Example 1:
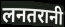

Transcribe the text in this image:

लनतरानी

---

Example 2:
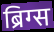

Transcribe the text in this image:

ब्रिग्स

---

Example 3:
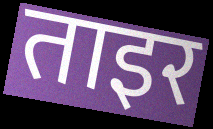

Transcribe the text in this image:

ताइर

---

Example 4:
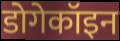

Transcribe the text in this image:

डोगेकॉइन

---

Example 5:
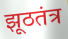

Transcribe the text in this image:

झूठतंत्र